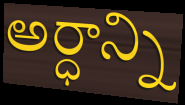
అర్ధాన్ని